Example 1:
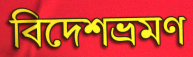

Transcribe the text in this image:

বিদেশভ্রমণ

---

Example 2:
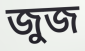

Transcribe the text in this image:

জুজ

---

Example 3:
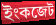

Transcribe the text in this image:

ইংকজেট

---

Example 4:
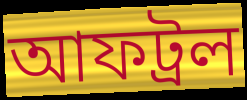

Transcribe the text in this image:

আফট্রল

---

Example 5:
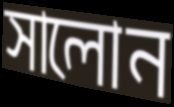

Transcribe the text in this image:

সালোন